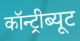
कॉन्ट्रीब्यूट